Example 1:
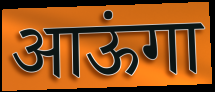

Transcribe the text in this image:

आऊंगा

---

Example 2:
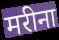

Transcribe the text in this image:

मरीना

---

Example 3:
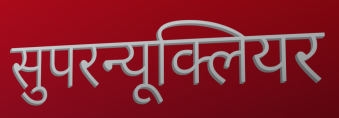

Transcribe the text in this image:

सुपरन्यूक्लियर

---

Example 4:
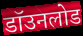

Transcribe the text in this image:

डॉउनलोड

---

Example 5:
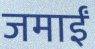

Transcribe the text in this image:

जमाईं